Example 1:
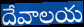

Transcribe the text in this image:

దేవాలయ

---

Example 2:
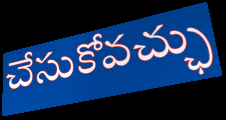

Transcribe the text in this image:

చేసుకోవచ్ఛు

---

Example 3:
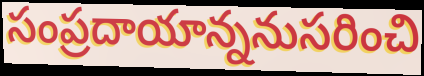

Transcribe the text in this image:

సంప్రదాయాన్ననుసరించి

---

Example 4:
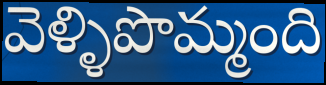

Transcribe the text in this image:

వెళ్ళిపొమ్మంది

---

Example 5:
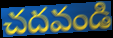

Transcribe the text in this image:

చదవండి